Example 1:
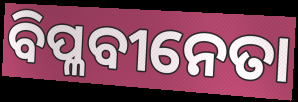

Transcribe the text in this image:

ବିପ୍ଳବୀନେତା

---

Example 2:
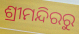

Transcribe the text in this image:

ଶ୍ରୀମନ୍ଦିରରୁ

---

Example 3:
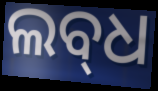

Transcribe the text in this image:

ଲବ୍‍ଧ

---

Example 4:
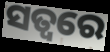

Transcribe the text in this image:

ସତ୍ଵରେ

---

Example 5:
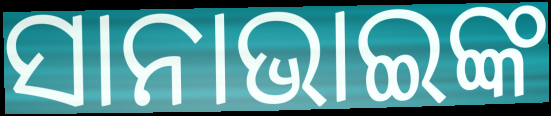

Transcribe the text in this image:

ସାନାଭାଇଙ୍କ